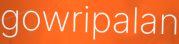
gowripalan